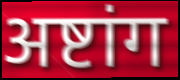
अष्टांग